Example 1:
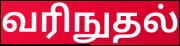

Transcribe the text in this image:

வரிநுதல்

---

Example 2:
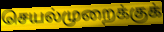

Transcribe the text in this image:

செயல்முறைக்குக்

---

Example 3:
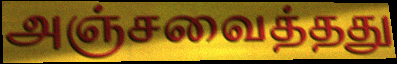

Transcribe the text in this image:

அஞ்சவைத்தது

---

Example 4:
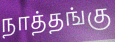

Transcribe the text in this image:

நாத்தங்கு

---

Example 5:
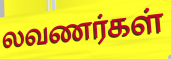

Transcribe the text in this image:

லவணர்கள்